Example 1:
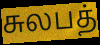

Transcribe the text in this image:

சுலபத்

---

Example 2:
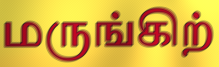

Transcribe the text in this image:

மருங்கிற்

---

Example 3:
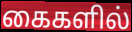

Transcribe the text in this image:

கைகளில்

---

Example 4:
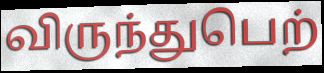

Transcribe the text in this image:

விருந்துபெற்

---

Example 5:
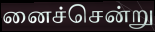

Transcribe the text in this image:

னைச்சென்று